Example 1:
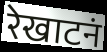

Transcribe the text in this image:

रेखाटनं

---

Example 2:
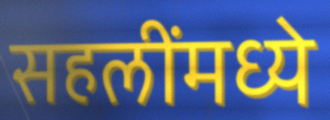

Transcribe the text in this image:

सहलींमध्ये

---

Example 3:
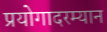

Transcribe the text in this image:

प्रयोगादरम्यान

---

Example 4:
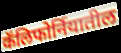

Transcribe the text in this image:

कॅलिफोर्नियातील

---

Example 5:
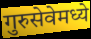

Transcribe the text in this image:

गुरुसेवेमध्ये